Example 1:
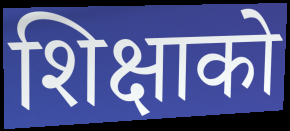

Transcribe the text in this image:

शिक्षाको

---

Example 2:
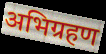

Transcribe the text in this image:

अभिग्रहण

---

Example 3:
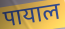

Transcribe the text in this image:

पायाल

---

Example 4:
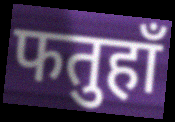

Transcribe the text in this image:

फतुहाँ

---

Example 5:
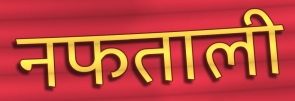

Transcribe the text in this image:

नफताली